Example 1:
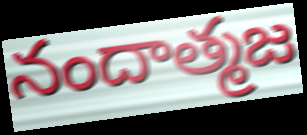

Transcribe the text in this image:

నందాత్మజ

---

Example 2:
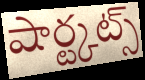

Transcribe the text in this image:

షార్ట్కట్స్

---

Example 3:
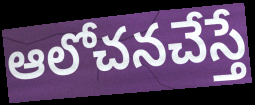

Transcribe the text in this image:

ఆలోచనచేస్తే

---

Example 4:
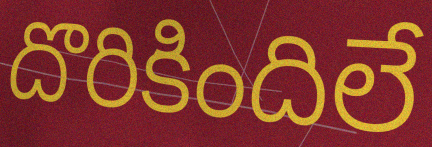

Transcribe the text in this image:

దొరికిందిలే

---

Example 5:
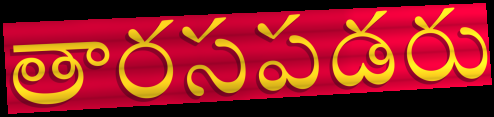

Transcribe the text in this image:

తారసపడరు